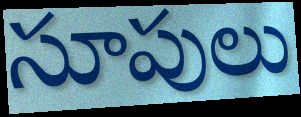
సూపులు